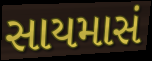
સાયમાસં